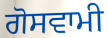
ਗੋਸਵਾਮੀ